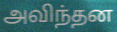
அவிந்தன